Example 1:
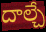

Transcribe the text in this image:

దాల్చే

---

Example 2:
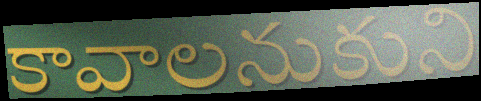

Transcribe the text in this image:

కావాలనుకుని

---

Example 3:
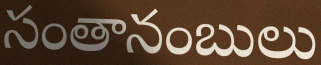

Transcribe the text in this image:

సంతానంబులు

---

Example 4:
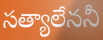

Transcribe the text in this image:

సత్యాలేననీ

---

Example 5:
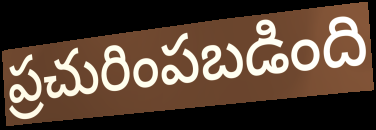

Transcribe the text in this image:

ప్రచురింపబడింది